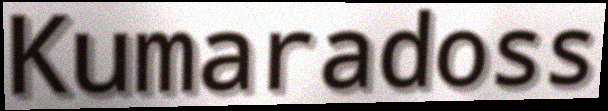
Kumaradoss